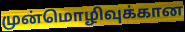
முன்மொழிவுக்கான